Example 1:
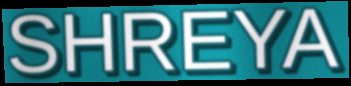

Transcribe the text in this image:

SHREYA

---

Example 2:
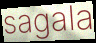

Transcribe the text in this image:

sagala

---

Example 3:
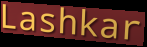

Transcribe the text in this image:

Lashkar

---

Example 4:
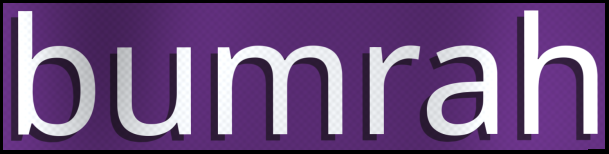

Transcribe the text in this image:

bumrah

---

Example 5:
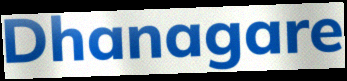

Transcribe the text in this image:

Dhanagare